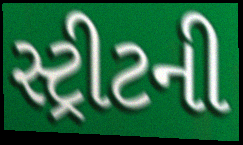
સ્ટ્રીટની